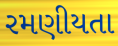
રમણીયતા